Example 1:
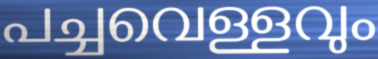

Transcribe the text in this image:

പച്ചവെള്ളവും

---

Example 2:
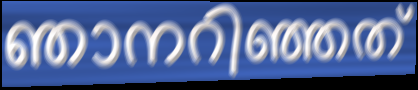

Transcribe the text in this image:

ഞാനറിഞ്ഞത്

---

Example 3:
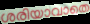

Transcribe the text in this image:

ശരിയാവാതെ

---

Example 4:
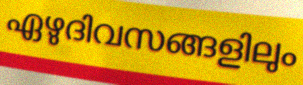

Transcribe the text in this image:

ഏഴുദിവസങ്ങളിലും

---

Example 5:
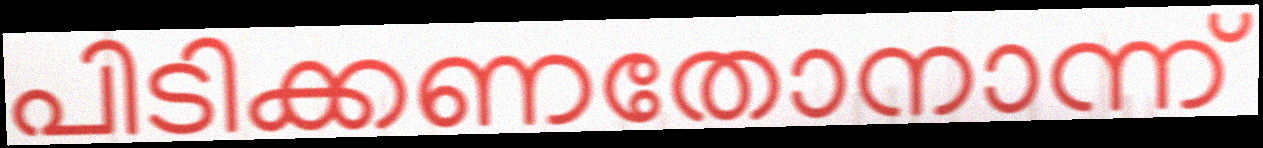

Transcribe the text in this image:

പിടിക്കണതോനാന്ന്